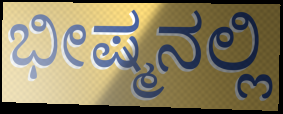
ಭೀಷ್ಮನಲ್ಲಿ